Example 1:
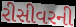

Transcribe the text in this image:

રીસીવરની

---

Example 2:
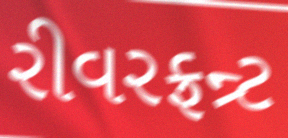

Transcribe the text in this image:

રીવરફ્રન્ર્ટ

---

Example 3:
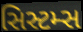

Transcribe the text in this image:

સિસ્ટમ્સ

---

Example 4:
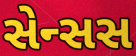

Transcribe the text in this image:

સેન્સસ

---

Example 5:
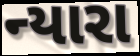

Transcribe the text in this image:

ન્યારા